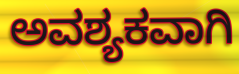
ಅವಶ್ಯಕವಾಗಿ